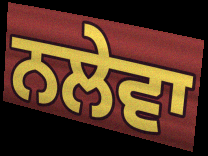
ਨਲੇਵਾ